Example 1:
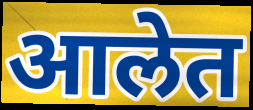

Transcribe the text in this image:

आलेत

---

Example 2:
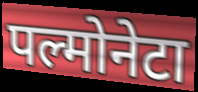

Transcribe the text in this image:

पल्मोनेटा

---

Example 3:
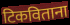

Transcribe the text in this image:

टिकविताना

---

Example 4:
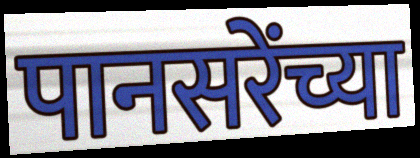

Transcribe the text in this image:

पानसरेंच्या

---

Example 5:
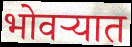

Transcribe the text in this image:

भोवऱ्यात